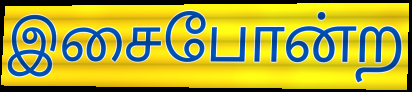
இசைபோன்ற